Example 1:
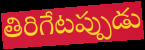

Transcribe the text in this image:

తిరిగేటప్పుడు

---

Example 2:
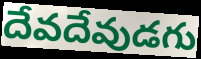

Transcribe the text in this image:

దేవదేవుడగు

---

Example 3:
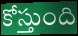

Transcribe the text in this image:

కోస్తుంది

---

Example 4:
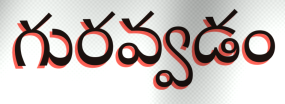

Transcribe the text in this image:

గురవ్వడం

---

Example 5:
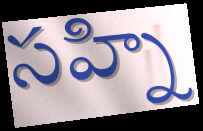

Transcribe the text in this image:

సహ్ని